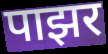
पाझर